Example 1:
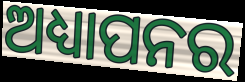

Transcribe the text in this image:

ଅଧ୍ୟାପନର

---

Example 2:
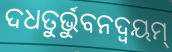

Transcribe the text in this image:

ଦଧତୁର୍ଭୁବନଦ୍ଵୟମ୍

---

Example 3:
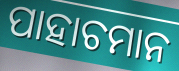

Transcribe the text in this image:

ପାହାଚମାନ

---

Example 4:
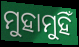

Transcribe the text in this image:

ମୁହାମୁହିଁ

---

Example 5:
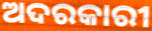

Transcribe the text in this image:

ଅଦରକାରୀ